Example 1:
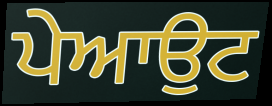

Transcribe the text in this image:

ਪੇਆਉਟ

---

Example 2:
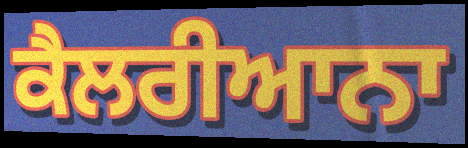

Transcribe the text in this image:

ਕੈਲਰੀਆਨਾ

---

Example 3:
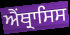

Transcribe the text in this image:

ਐਂਥ੍ਰਾਸਿਸ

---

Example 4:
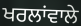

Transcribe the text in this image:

ਖਰਲਾਂਵਾਲੇ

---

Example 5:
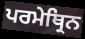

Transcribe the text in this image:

ਪਰਮੇਥ੍ਰਿਨ